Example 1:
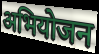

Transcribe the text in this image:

अभियोजन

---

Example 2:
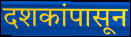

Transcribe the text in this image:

दशकांपासून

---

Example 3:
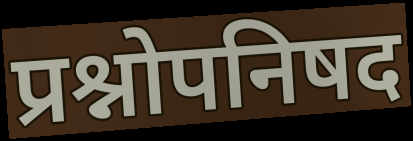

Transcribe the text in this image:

प्रश्नोपनिषद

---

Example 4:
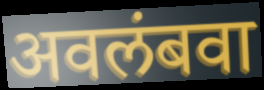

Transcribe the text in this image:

अवलंबवा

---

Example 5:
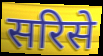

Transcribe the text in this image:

सरिसे